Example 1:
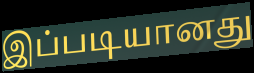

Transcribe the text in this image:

இப்படியானது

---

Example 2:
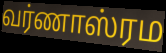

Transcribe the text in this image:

வர்ணாஸ்ரம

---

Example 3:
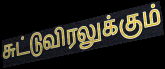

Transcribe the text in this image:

சுட்டுவிரலுக்கும்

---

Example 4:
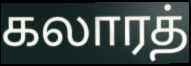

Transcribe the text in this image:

கலாரத்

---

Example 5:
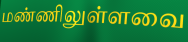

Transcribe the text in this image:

மண்ணிலுள்ளவை